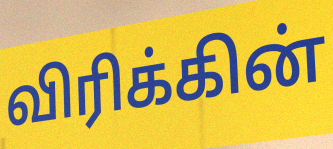
விரிக்கின்